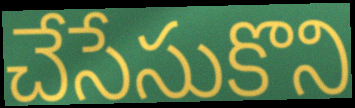
చేసేసుకొని